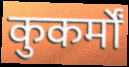
कुकर्मों